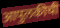
आपुलकीची